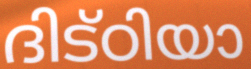
ദിട്ഠിയാ